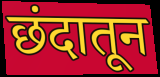
छंदातून